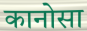
कानोसा